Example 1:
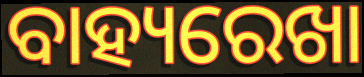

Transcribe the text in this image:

ବାହ୍ୟରେଖା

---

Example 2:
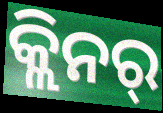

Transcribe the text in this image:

କ୍ଲିନର୍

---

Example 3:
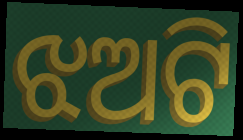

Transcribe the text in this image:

ଝଅଟି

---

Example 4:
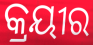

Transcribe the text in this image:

କ୍ରୟୀର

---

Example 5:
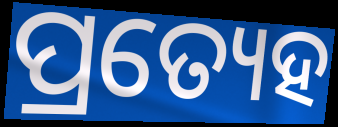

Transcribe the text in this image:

ପ୍ରତ୍ୟେହ